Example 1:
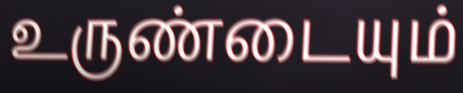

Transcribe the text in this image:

உருண்டையும்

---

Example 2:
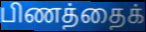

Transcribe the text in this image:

பிணத்தைக்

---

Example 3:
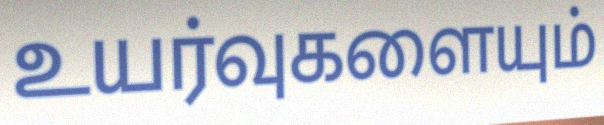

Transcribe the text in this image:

உயர்வுகளையும்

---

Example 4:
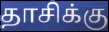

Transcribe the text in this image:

தாசிக்கு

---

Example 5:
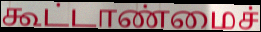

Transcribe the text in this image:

கூட்டாண்மைச்